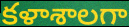
కళాశాలగా